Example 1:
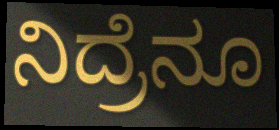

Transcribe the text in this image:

ನಿದ್ರೆನೂ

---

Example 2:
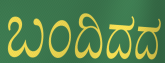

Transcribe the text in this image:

ಬಂದಿದದ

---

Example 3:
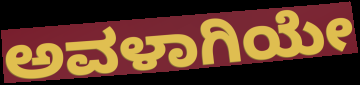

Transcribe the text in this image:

ಅವಳಾಗಿಯೇ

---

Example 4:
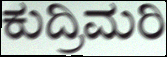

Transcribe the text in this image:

ಕುದ್ರಿಮರಿ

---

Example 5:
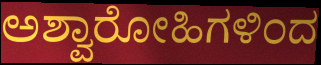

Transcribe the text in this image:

ಅಶ್ವಾರೋಹಿಗಳಿಂದ